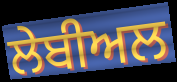
ਲੇਬੀਅਲ